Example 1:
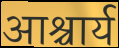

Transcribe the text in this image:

आश्चार्य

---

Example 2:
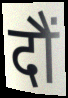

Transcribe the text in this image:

दौं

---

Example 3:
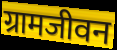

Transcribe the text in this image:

ग्रामजीवन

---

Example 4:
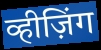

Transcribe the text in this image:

व्हीज़िंग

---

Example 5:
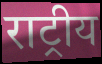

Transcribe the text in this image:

राट्रीय